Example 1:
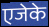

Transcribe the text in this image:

एजेके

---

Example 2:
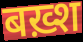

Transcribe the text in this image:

बख़्श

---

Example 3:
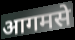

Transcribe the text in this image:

आगमसे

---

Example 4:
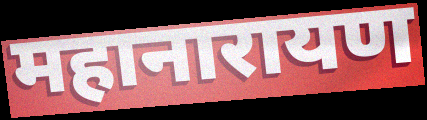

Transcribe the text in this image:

महानारायण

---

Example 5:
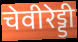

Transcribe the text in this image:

चेवीरेड्डी